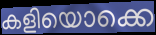
കളിയൊക്കെ